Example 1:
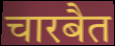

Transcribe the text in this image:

चारबैत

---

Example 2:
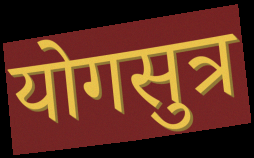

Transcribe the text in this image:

योगसुत्र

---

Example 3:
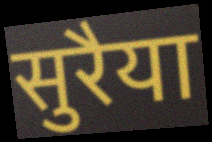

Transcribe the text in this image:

सुरैया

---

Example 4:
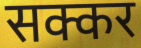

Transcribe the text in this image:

सक्कर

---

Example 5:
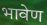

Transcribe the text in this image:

भावेण